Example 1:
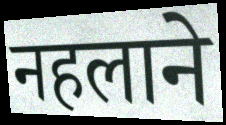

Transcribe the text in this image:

नहलाने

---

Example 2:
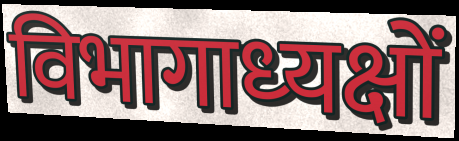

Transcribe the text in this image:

विभागाध्‍यक्षों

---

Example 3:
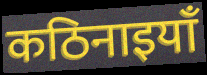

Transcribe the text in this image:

कठिनाइयाँ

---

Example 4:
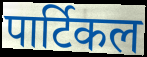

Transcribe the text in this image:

पार्टिकल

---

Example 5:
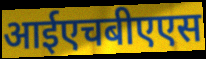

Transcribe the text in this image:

आईएचबीएएस